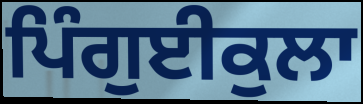
ਪਿੰਗੁਈਕੁਲਾ